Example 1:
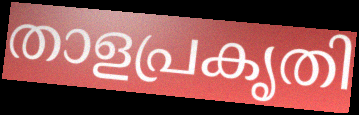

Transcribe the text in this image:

താളപ്രകൃതി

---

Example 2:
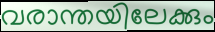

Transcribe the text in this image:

വരാന്തയിലേക്കും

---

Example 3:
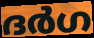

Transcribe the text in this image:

ദർഗ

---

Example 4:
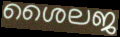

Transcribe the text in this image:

ശൈലജ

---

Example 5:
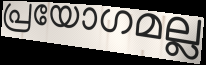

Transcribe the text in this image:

പ്രയോഗമല്ല